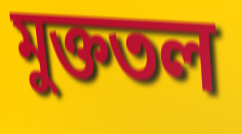
মুক্ততল